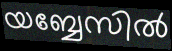
യബ്ബേസിൽ